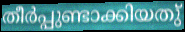
തീർപ്പുണ്ടാക്കിയതു്